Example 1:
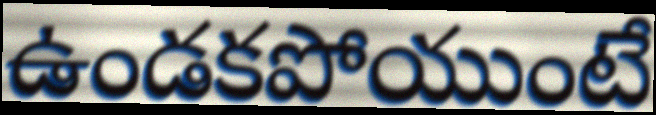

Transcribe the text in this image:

ఉండకపోయుంటే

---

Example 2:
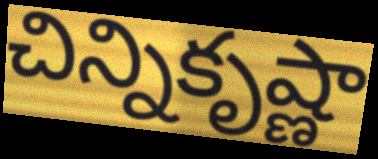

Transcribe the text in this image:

చిన్నికృష్ణా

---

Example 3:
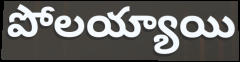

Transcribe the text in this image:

పోలయ్యాయి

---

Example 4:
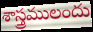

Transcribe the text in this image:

శాస్త్రములందు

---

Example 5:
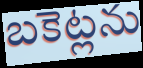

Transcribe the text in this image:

బకెట్లను